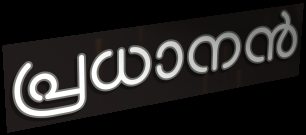
പ്രധാനൻ